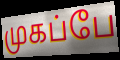
முகப்பே